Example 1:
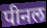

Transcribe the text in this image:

पीनल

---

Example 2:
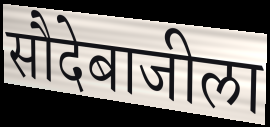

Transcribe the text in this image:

सौदेबाजीला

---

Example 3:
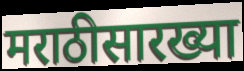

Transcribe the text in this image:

मराठीसारख्या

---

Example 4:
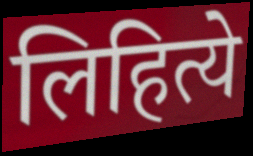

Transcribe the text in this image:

लिहित्ये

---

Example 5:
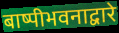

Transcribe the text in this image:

बाष्पीभवनाद्वारे